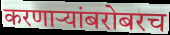
करणाऱ्यांबरोबरच